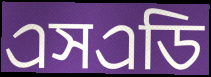
এসএডি